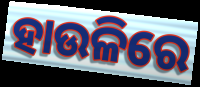
ହାଉଳିରେ